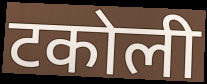
टकोली